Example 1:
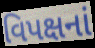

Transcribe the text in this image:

વિપક્ષનાં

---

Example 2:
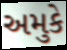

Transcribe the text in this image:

અમુકે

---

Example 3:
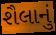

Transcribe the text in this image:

શૈલાનું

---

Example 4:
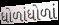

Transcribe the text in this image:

ધોળાંધોળાં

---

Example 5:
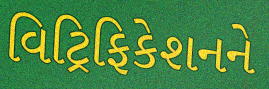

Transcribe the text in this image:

વિટ્રિફિકેશનને